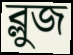
ব্লুজ